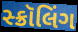
સ્ક્રૉલિંગ